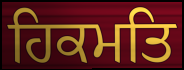
ਹਿਕਮਤਿ